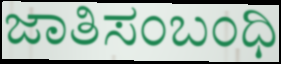
ಜಾತಿಸಂಬಂಧಿ